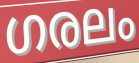
ഗരലം